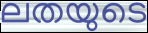
ലതയുടെ